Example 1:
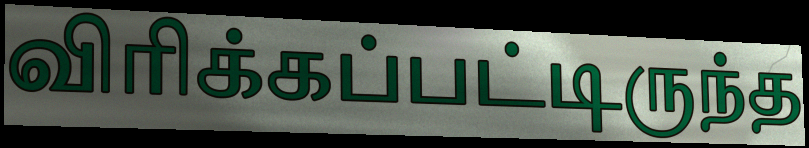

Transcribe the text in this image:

விரிக்கப்பட்டிருந்த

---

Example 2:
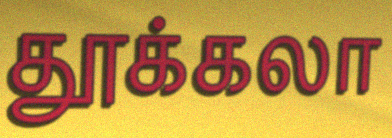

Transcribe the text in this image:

தூக்கலா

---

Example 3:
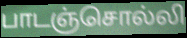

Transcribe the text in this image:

பாடஞ்சொல்லி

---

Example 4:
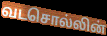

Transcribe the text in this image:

வடசொல்லின்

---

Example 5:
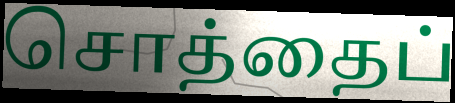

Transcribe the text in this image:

சொத்தைப்